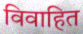
विवाहित